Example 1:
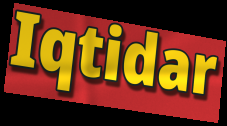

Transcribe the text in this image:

Iqtidar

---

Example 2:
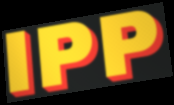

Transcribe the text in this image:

IPP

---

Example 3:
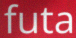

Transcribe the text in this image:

futa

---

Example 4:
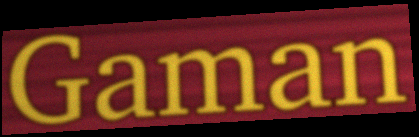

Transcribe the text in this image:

Gaman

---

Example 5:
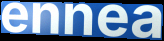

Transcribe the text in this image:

ennea